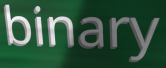
binary